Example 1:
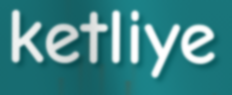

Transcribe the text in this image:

ketliye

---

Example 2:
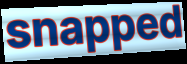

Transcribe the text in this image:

snapped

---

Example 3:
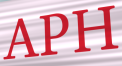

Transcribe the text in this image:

APH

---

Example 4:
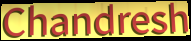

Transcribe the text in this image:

Chandresh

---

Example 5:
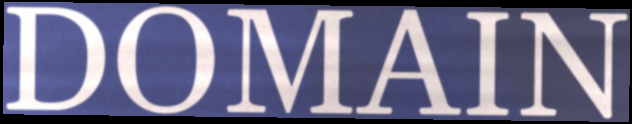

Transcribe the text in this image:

DOMAIN